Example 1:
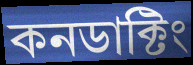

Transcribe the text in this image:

কনডাক্টিং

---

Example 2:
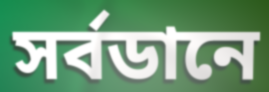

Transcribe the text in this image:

সর্বডানে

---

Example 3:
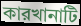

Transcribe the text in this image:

কারখানাটি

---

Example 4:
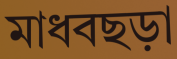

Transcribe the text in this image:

মাধবছড়া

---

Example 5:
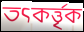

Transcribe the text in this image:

তৎকর্ত্তৃক